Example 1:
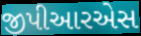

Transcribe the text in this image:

જીપીઆરએસ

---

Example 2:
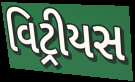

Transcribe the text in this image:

વિટ્રીયસ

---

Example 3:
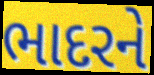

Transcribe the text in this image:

ભાદરને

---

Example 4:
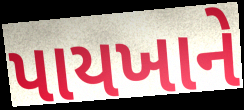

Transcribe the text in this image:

પાયખાને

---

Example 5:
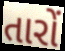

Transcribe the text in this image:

તારોં